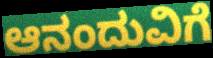
ಆನಂದುವಿಗೆ